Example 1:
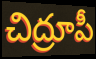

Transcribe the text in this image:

చిద్రూపీ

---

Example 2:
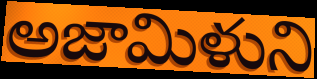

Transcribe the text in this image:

అజామిళుని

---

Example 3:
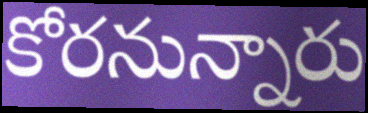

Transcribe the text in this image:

కోరనున్నారు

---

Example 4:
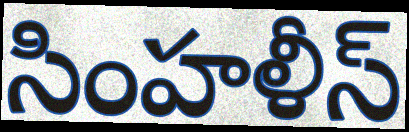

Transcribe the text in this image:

సింహళీస్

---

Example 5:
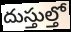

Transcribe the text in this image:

దుస్తుల్తో